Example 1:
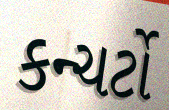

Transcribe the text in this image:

કન્ચર્ટો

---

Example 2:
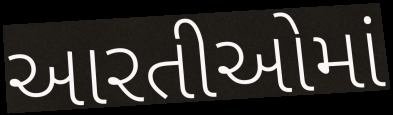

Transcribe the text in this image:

આરતીઓમાં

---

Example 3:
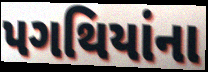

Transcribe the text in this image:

પગથિયાંના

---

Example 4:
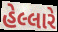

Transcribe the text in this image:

હેલ્લારે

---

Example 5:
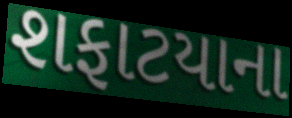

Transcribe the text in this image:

શફાટયાના